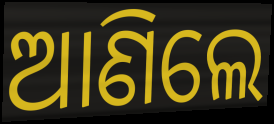
ଆଣିଲେ